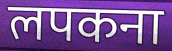
लपकना